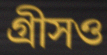
গ্রীসও